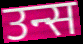
उन्स